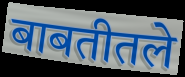
बाबतीतले